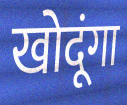
खोदूंगा